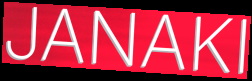
JANAKI